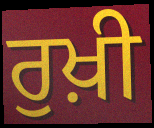
ਰੁਖ਼ੀ